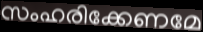
സംഹരിക്കേണമേ